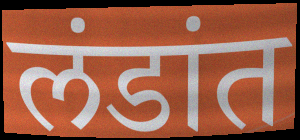
लंडांत